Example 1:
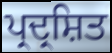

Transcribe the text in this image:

ਪ੍ਰਦ੍ਰਸ਼ਿਤ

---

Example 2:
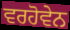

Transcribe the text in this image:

ਵਰਹੋਵੇਨ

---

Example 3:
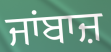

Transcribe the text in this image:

ਜਾਂਬਾਜ਼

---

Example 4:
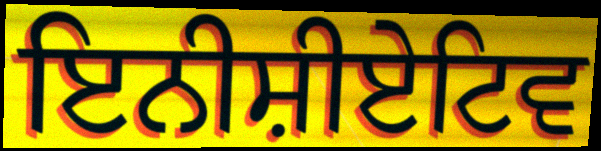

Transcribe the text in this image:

ਇਨੀਸ਼ੀਏਟਿਵ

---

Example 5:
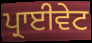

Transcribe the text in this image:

ਪ੍ਰਾਈਵੇਟ